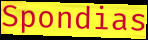
Spondias